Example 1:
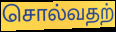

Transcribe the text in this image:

சொல்வதற்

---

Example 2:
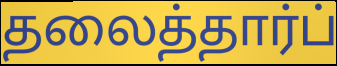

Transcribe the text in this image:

தலைத்தார்ப்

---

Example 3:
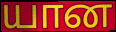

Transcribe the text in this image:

யான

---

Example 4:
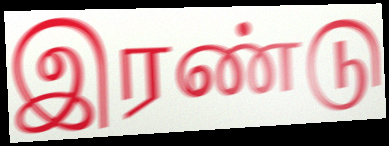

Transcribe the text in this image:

இரண்டு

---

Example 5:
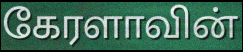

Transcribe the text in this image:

கேரளாவின்